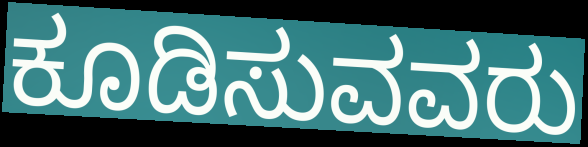
ಕೂಡಿಸುವವರು